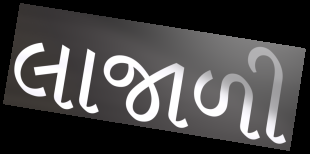
લાજાળી